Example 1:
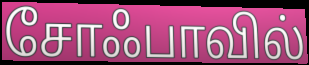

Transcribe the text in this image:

சோஃபாவில்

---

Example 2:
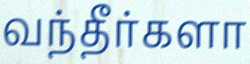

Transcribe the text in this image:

வந்தீர்களா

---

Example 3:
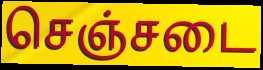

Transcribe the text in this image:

செஞ்சடை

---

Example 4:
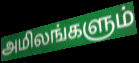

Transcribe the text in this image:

அமிலங்களும்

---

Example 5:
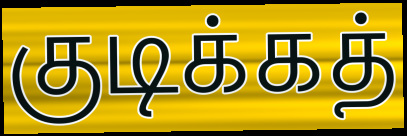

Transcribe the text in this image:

குடிக்கத்